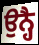
ਉਨ੍ਹੈ